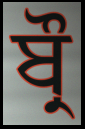
ਬ੍ਰੌ